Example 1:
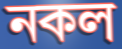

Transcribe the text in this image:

নকল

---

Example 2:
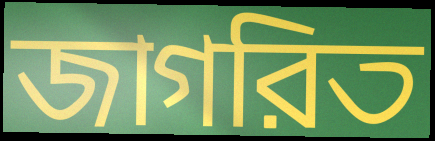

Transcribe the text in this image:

জাগরিত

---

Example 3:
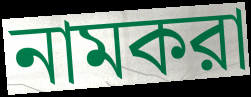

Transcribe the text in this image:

নামকরা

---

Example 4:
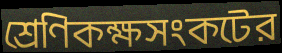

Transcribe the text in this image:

শ্রেণিকক্ষসংকটের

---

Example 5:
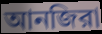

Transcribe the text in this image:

আনজিরা